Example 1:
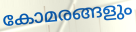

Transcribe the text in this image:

കോമരങ്ങളും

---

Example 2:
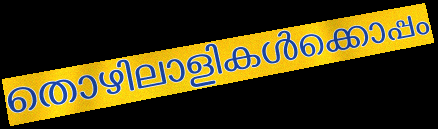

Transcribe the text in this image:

തൊഴിലാളികൾക്കൊപ്പം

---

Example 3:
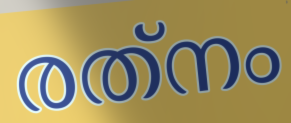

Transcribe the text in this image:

രത്‌നം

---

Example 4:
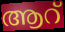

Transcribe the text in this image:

ആറ്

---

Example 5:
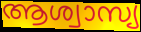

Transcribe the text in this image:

ആശ്വാസ്യ